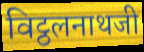
विट्ठलनाथजी